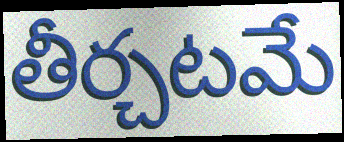
తీర్చటమే